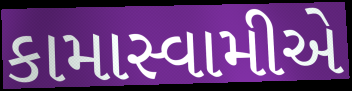
કામાસ્વામીએ